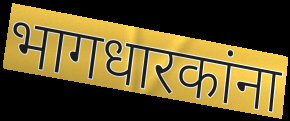
भागधारकांना